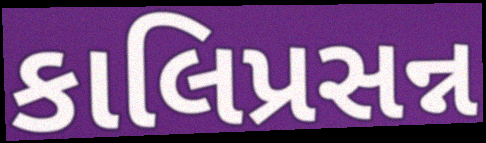
કાલિપ્રસન્ન